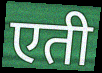
एती